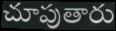
చూపుతారు